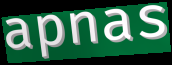
apnas